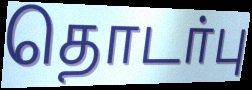
தொடர்பு